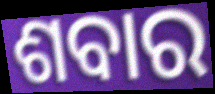
ଶବାର